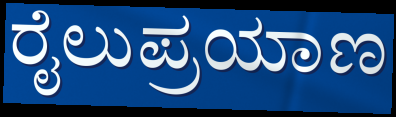
ರೈಲುಪ್ರಯಾಣ